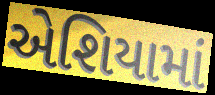
એશિયામાં